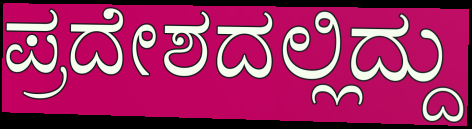
ಪ್ರದೇಶದಲ್ಲಿದ್ದು